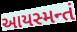
આયસ્મન્તં